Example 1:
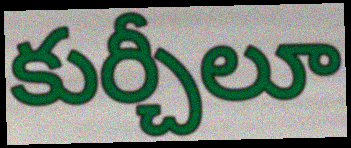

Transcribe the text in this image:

కుర్చీలూ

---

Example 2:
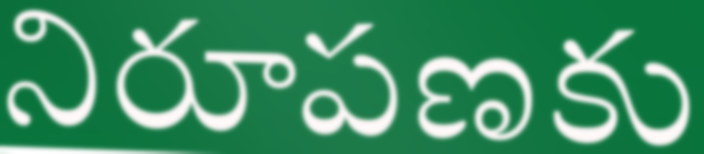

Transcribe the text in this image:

నిరూపణకు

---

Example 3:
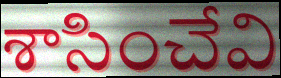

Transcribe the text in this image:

శాసించేవి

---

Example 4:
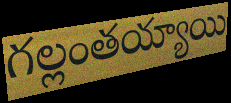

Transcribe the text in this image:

గల్లంతయ్యాయి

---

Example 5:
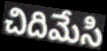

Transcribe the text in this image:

చిదిమేసి